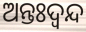
ଅନ୍ତଃଦ୍ବନ୍ଦ